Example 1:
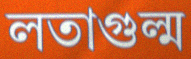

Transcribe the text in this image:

লতাগুল্ম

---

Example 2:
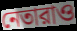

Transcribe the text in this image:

নেতারাও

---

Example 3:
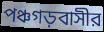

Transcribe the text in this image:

পঞ্চগড়বাসীর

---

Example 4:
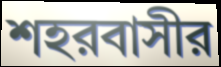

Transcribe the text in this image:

শহরবাসীর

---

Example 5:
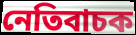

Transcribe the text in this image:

নেতিবাচক